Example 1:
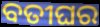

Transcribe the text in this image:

ବତୀଘର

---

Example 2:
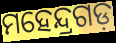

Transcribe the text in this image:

ମହେନ୍ଦ୍ରଗଡ଼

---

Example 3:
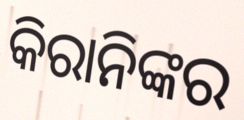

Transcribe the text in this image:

କିରାନିଙ୍କର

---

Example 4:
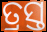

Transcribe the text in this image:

ତ୍ରସ୍ତ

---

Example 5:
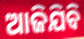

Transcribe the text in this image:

ଆଜିଯିବି